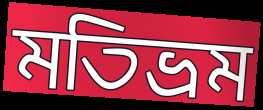
মতিভ্রম